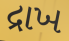
દ્રાખ